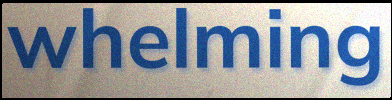
whelming